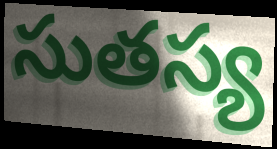
సుతస్య